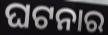
ଘଟନାର